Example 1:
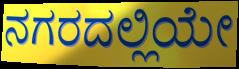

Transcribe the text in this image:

ನಗರದಲ್ಲಿಯೇ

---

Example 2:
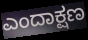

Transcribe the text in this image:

ಎಂದಾಕ್ಷಣ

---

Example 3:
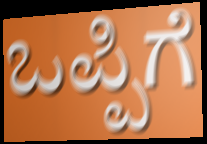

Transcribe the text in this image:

ಒಪ್ಪಿಗೆ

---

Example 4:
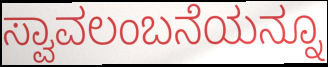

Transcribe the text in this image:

ಸ್ವಾವಲಂಬನೆಯನ್ನೂ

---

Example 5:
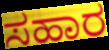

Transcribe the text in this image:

ಸಹಾರ